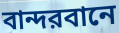
বান্দরবানে